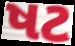
ષટ